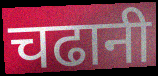
चढानी